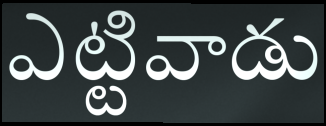
ఎట్టివాడు